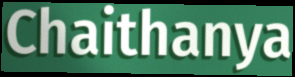
Chaithanya